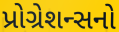
પ્રોગ્રેશન્સનો